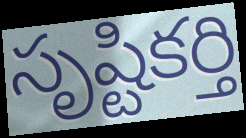
సృష్టికర్తి